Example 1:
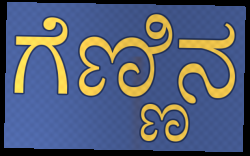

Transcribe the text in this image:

ಗೆಣ್ಣಿನ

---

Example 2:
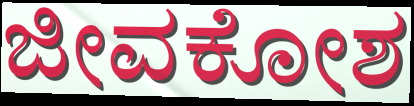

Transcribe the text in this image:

ಜೀವಕೋಶ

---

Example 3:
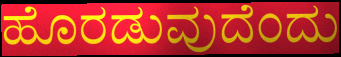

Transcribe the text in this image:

ಹೊರಡುವುದೆಂದು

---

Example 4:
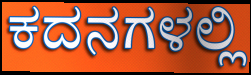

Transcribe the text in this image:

ಕದನಗಳಲ್ಲಿ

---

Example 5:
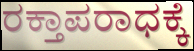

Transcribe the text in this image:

ರಕ್ತಾಪರಾಧಕ್ಕೆ